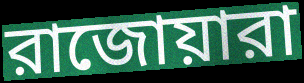
রাজোয়ারা